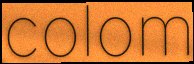
colom